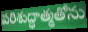
పరిశుద్ధాత్మతోను